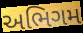
અભિગમ